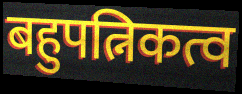
बहुपत्निकत्व